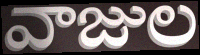
వాజుల